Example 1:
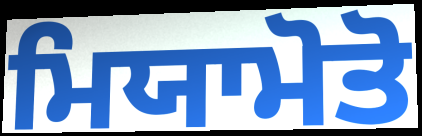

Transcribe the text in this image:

ਮਿਯਾਮੋਤੋ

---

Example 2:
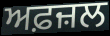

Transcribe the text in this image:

ਅਫ਼ਜ਼ਲ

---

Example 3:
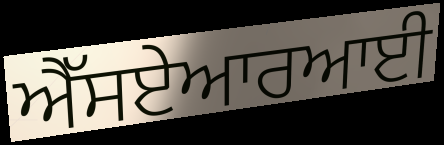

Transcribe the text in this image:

ਐੱਸਏਆਰਆਈ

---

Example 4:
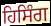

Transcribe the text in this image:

ਹਿਸਿੰਗ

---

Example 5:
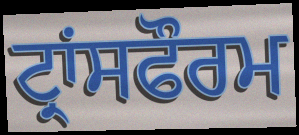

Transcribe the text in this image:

ਟ੍ਰਾਂਸਫੌਰਮ